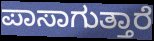
ಪಾಸಾಗುತ್ತಾರೆ